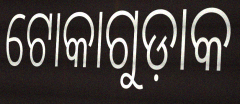
ଟୋକାଗୁଡ଼ାକ